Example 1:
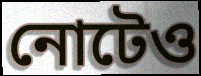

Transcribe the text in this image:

নোটেও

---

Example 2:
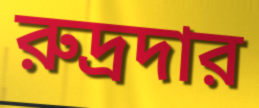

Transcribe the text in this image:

রুদ্রদার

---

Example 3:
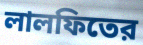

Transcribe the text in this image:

লালফিতের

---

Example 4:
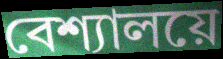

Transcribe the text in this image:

বেশ্যালয়ে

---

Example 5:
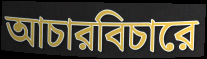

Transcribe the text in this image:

আচারবিচারে